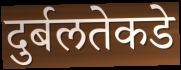
दुर्बलतेकडे